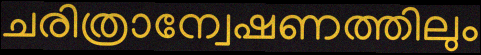
ചരിത്രാന്വേഷണത്തിലും